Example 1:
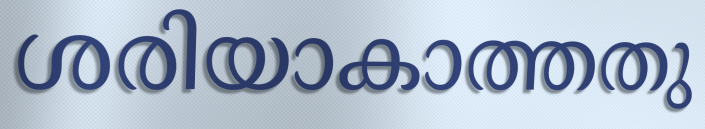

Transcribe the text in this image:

ശരിയാകാത്തതു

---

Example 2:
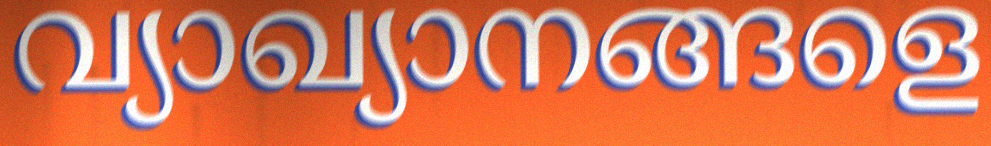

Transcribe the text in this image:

വ്യാഖ്യാനങ്ങളെ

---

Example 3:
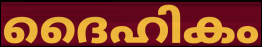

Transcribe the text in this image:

ദൈഹികം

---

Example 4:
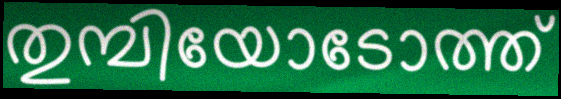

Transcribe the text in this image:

തുമ്പിയോടോത്ത്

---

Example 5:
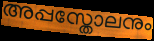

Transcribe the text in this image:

അപ്പസ്തോലനും